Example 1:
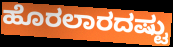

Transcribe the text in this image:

ಹೊರಲಾರದಷ್ಟು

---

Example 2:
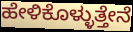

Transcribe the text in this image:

ಹೇಳಿಕೊಳ್ಳುತ್ತೇನೆ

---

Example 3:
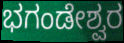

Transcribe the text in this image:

ಭಗಂಡೇಶ್ವರ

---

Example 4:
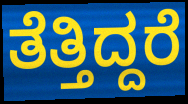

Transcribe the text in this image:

ತೆತ್ತಿದ್ದರೆ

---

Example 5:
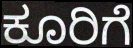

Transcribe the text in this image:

ಕೂರಿಗೆ